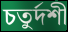
চতুৰ্দশী